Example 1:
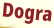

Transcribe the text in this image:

Dogra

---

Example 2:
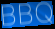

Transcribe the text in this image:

BBQ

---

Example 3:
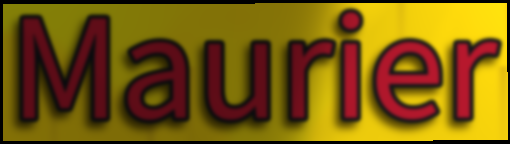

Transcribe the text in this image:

Maurier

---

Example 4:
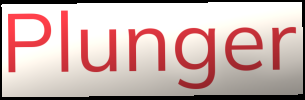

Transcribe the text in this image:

Plunger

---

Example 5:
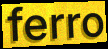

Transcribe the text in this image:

ferro